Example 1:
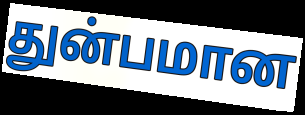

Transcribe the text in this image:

துன்பமான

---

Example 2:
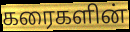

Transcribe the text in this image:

கரைகளின்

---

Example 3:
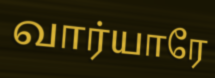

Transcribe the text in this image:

வார்யாரே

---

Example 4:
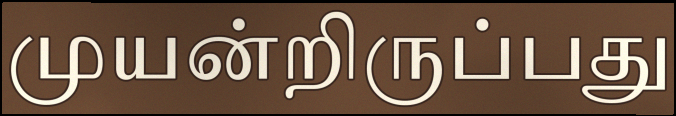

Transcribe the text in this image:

முயன்றிருப்பது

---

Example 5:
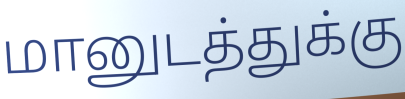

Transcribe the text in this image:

மானுடத்துக்கு